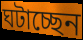
ঘটাচ্ছেন